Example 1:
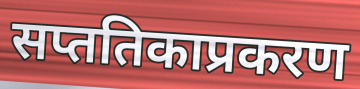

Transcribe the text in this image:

सप्ततिकाप्रकरण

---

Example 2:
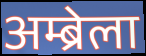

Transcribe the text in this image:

अम्‍ब्रेला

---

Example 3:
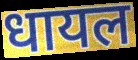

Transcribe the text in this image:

धायल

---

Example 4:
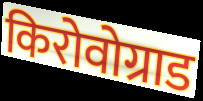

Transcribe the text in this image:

किरोवोग्राड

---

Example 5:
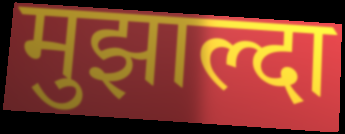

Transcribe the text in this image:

मुझाल्दा